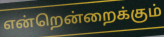
என்றென்றைக்கும்